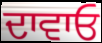
ਦਾਵਾਓ